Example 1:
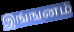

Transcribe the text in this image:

இங்ஙனம்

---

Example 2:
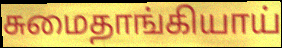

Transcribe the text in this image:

சுமைதாங்கியாய்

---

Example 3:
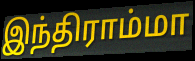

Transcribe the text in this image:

இந்திராம்மா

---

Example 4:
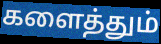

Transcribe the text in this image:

களைத்தும்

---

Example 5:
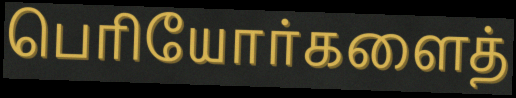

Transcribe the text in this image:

பெரியோர்களைத்